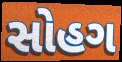
સોહગ